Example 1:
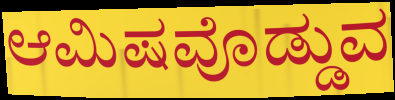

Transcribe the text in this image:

ಆಮಿಷವೊಡ್ಡುವ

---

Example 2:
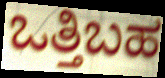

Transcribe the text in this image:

ಒತ್ತಿಬಹ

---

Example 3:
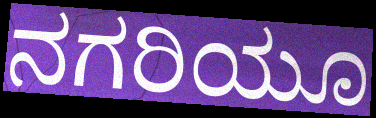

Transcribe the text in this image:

ನಗರಿಯೂ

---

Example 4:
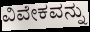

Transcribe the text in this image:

ವಿವೇಕವನ್ನು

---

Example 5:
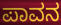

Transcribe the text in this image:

ಪಾವನ